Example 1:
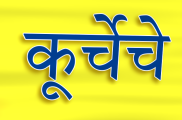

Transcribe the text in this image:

कूर्चेचे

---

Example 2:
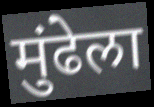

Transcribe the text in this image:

मुंढेला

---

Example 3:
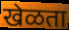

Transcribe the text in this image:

खेळता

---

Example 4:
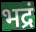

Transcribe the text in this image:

भद्रं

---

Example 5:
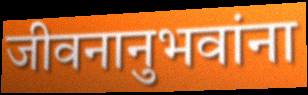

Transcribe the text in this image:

जीवनानुभवांना